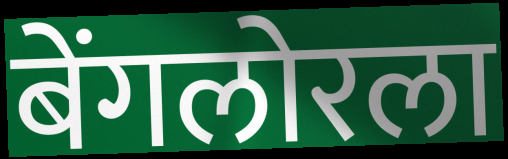
बेंगलोरला